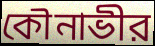
কৌনাভীর